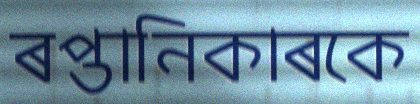
ৰপ্তানিকাৰকে